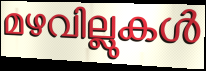
മഴവില്ലുകൾ